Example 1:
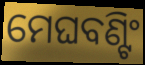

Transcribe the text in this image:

ମେଘବଣ୍ଟିଂ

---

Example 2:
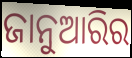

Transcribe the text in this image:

ଜାନୁଆରିର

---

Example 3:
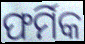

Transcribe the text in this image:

ଫର୍ମିକ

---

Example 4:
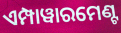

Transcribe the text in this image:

ଏମ୍ପାୱାରମେଣ୍ଟ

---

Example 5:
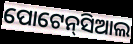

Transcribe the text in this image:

ପୋଟେନ୍‌ସିଆଲ